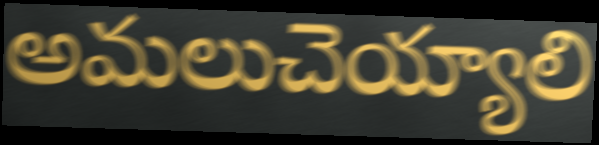
అమలుచెయ్యాలి